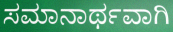
ಸಮಾನಾರ್ಥವಾಗಿ